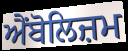
ਐਂਬੋਲਿਜ਼ਮ